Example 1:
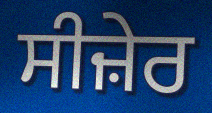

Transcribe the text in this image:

ਸੀਜ਼ੇਰ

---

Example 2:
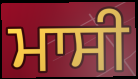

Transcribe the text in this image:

ਮਾਸੀ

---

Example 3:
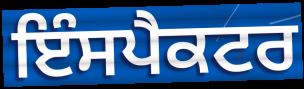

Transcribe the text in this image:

ਇੰਸਪੈਕਟਰ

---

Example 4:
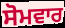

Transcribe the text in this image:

ਸੋਮਵਾਰ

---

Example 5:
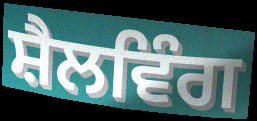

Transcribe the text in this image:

ਸ਼ੈਲਵਿੰਗ